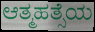
ಆತ್ಮಹತ್ಸೆಯ